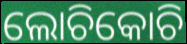
ଲୋଚିକୋଚି